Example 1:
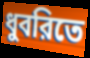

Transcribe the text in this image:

ধুবরিতে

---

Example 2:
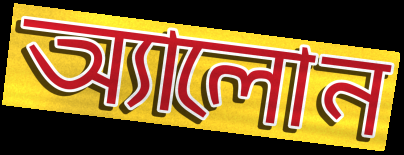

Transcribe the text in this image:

অ্যালোন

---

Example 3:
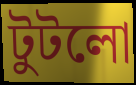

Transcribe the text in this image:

টুটলো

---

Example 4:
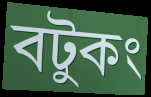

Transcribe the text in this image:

বটুকং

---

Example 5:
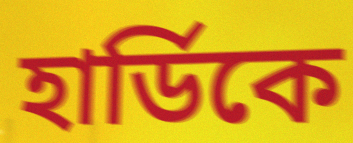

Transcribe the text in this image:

হার্ডিকে